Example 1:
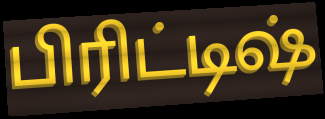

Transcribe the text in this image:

பிரிட்டிஷ்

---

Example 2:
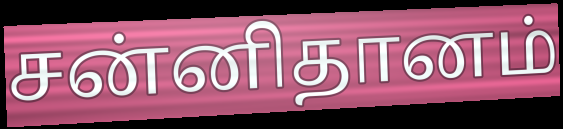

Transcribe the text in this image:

சன்னிதானம்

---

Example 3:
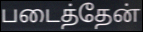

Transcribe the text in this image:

படைத்தேன்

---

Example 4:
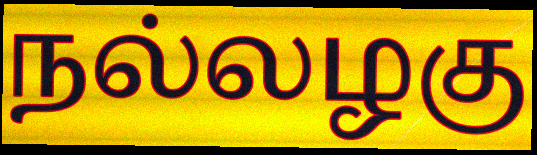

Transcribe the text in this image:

நல்லழகு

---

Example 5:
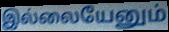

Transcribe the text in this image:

இல்லையேனும்